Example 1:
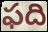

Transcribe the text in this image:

ఫది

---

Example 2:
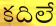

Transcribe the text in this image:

కదిలే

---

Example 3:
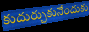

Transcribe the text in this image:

కుదుర్చుకునేందుకు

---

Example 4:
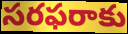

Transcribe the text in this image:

సరఫరాకు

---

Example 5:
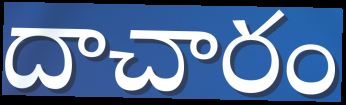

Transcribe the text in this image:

దాచారం